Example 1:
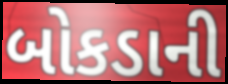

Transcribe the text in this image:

બોકડાની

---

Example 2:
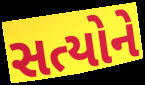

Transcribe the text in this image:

સત્યોને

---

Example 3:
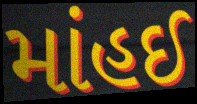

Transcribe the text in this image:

માંહઈ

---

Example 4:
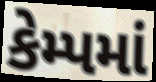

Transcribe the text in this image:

કેમ્પમાં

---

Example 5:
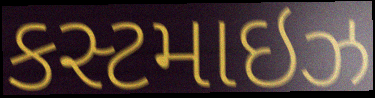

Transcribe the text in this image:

કસ્ટમાઇઝ